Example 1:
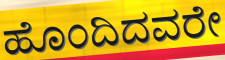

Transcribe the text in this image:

ಹೊಂದಿದವರೇ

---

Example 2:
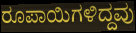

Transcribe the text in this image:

ರೂಪಾಯಿಗಳಿದ್ದವು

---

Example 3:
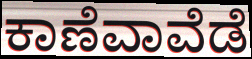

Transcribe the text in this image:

ಕಾಣೆವಾವೆಡೆ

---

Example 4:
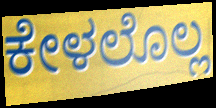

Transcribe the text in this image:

ಕೇಳಲೊಲ್ಲ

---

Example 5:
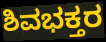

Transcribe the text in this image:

ಶಿವಭಕ್ತರ